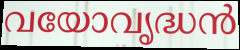
വയോവൃദ്ധൻ